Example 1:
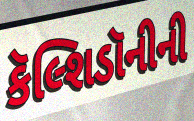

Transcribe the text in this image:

કૅલ્શિડૉનીની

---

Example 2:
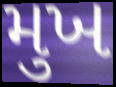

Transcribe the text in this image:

મુખ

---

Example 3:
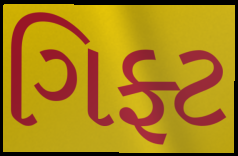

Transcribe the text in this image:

ગિફ્ટ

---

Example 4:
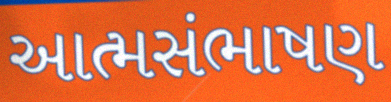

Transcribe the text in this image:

આત્મસંભાષણ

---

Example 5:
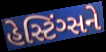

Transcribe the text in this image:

હેસ્ટિંગ્સને